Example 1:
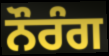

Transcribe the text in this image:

ਨੌਰੰਗ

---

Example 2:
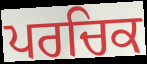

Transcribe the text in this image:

ਪਰਚਿਕ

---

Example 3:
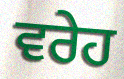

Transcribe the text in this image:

ਵਰੇਹ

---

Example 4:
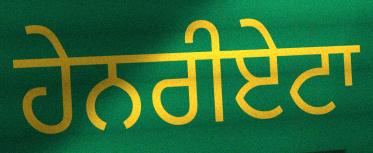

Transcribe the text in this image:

ਹੇਨਰੀਏਟਾ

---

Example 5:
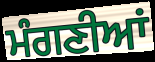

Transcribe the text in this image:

ਮੰਗਣੀਆਂ